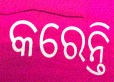
କରେନ୍ତି